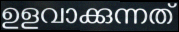
ഉളവാക്കുന്നത്